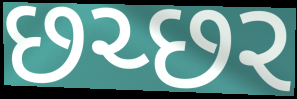
છચ્છર